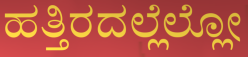
ಹತ್ತಿರದಲ್ಲೆಲ್ಲೋ